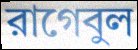
রাগেবুল